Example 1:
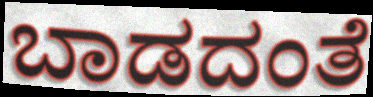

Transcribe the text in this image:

ಬಾಡದಂತೆ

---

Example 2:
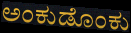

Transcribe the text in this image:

ಅಂಕುಡೊಂಕು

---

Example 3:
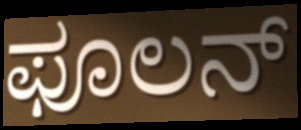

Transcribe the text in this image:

ಫೂಲನ್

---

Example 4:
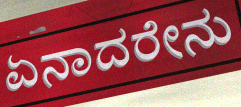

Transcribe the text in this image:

ಏನಾದರೇನು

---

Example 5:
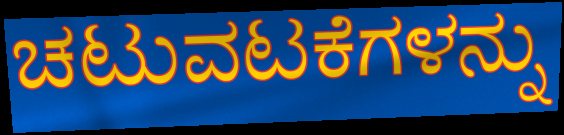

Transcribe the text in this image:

ಚಟುವಟಕೆಗಳನ್ನು